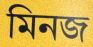
মিনজ